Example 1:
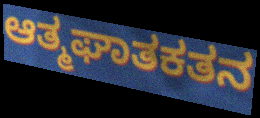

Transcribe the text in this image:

ಆತ್ಮಘಾತಕತನ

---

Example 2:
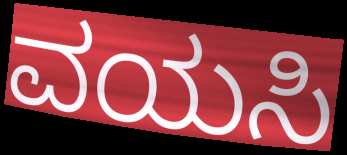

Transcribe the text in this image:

ವಯಸಿ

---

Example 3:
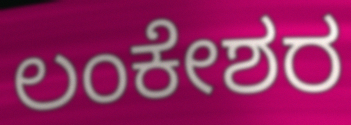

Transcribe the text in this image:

ಲಂಕೇಶರ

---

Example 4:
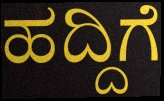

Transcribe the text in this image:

ಹದ್ದಿಗೆ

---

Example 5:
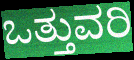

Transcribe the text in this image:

ಒತ್ತುವರಿ